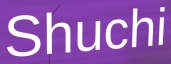
Shuchi